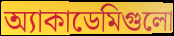
অ্যাকাডেমিগুলো